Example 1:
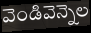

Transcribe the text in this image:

వెండివెన్నెల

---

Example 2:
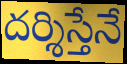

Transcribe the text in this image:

దర్శిస్తేనే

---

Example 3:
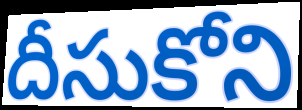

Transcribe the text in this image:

దీసుకోని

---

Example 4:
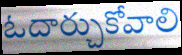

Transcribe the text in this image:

ఓదార్చుకోవాలి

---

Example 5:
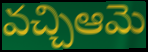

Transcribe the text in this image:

వచ్చిఆమె